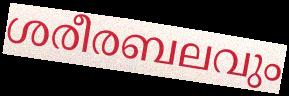
ശരീരബലവും